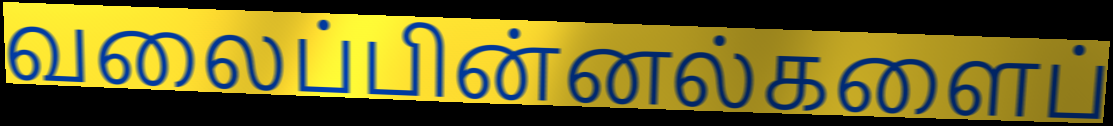
வலைப்பின்னல்களைப்